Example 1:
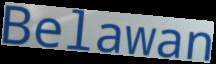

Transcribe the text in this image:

Belawan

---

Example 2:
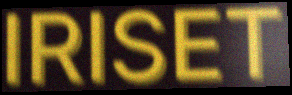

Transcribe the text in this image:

IRISET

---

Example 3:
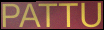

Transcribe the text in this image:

PATTU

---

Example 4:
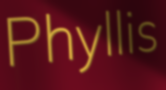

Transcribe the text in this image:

Phyllis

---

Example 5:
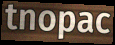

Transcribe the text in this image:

tnopac